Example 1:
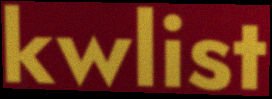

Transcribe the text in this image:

kwlist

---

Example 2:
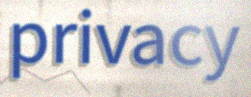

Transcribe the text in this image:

privacy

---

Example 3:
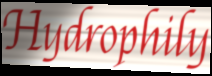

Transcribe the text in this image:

Hydrophily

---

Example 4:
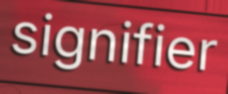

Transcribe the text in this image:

signifier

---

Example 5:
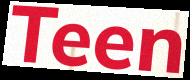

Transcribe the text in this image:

Teen